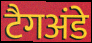
टैगअंडे